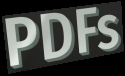
PDFs